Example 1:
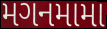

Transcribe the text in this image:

મગનમામા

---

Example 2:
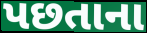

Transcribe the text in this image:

પછતાના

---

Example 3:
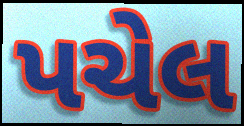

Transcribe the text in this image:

પચેલ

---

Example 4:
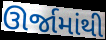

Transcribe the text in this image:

ઊર્જામાંથી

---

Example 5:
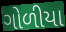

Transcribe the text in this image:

ગોળીયા